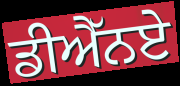
ਡੀਐੱਨਏ